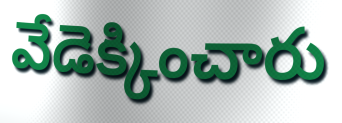
వేడెక్కించారు